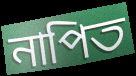
নাপিত